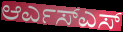
ಆರ್ಎಸ್ಎಸ್